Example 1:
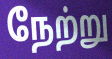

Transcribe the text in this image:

நேற்று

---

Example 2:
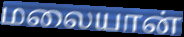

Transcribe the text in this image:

மலையான்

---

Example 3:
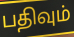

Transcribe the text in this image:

பதிவும்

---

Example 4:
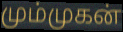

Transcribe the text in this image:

மும்முகன்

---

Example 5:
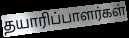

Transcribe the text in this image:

தயாரிப்பாளர்கள்